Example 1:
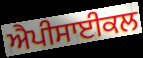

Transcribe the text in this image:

ਐਪੀਸਾਈਕਲ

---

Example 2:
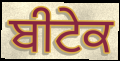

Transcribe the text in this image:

ਬੀਟੇਕ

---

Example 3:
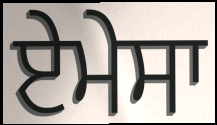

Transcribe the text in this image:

ਏਮੇਸਾ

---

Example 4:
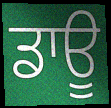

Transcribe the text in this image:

ਡਾਊ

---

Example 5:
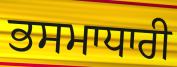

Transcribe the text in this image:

ਭਸਮਾਧਾਰੀ